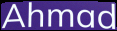
Ahmad